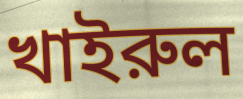
খাইরুল